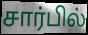
சார்பில்